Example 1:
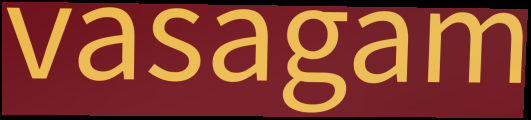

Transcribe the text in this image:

vasagam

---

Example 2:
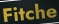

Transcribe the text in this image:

Fitche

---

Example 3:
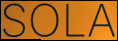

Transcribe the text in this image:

SOLA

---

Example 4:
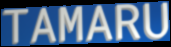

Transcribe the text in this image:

TAMARU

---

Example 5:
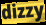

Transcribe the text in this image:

dizzy